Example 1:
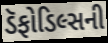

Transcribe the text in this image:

ડૅફોડિલ્સની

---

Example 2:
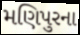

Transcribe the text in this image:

મણિપુરના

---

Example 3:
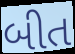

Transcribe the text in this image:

બીત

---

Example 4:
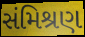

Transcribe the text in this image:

સંમિશ્રણ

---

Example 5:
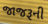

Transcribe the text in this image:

જાજરૂની